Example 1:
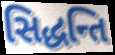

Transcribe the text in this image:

સિદ્ધન્તિ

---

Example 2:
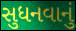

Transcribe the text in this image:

સુધનવાનું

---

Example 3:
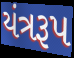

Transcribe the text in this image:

યંત્રરૂપ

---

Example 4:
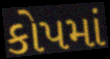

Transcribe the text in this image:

કોપમાં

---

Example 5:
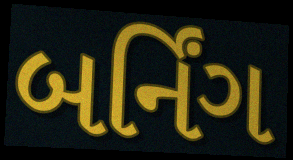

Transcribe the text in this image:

બર્નિંગ